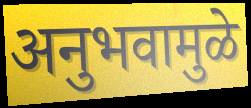
अनुभवामुळे